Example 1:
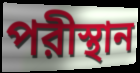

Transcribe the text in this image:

পরীস্থান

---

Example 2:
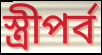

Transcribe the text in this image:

স্ত্রীপর্ব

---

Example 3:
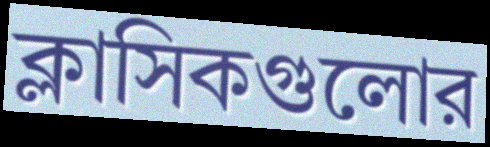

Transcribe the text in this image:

ক্লাসিকগুলোর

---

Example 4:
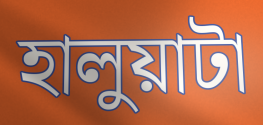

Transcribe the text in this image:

হালুয়াটা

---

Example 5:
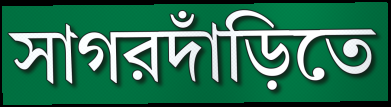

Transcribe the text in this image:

সাগরদাঁড়িতে